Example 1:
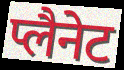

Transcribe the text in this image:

प्लैनेट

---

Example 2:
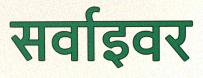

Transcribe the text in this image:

सर्वाइवर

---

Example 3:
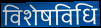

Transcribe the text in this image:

विशेषविधि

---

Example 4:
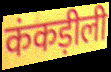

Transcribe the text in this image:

कंकड़ीली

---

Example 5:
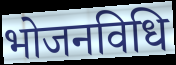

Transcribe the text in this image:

भोजनविधि